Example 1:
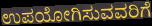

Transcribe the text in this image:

ಉಪಯೋಗಿಸುವವರಿಗೆ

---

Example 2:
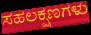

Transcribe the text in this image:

ಸಹಲಕ್ಷಣಗಳು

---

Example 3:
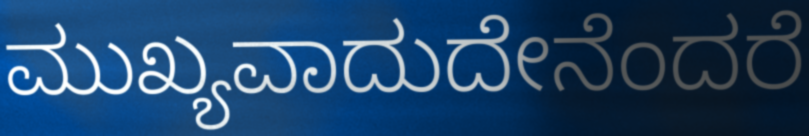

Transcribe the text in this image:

ಮುಖ್ಯವಾದುದೇನೆಂದರೆ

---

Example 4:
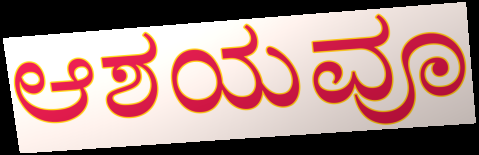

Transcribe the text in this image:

ಆಶಯವೂ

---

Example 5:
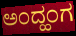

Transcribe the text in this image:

ಅಂದ್ಹಂಗ